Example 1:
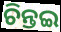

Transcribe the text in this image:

ଚିନ୍ତଇ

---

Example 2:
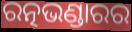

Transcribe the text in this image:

ରତ୍ନଭଣ୍ଡାରର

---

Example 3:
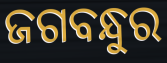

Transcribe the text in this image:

ଜଗବନ୍ଧୁର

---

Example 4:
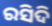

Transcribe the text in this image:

ରସିଦି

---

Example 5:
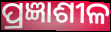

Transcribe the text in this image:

ପ୍ରଜ୍ଞାଶୀଳ